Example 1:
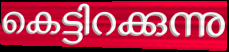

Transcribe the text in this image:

കെട്ടിറക്കുന്നു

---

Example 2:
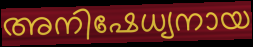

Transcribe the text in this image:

അനിഷേധ്യനായ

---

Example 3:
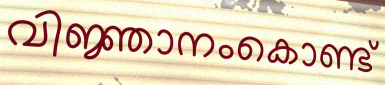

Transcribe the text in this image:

വിജ്ഞാനംകൊണ്ട്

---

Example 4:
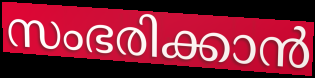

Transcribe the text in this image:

സംഭരിക്കാൻ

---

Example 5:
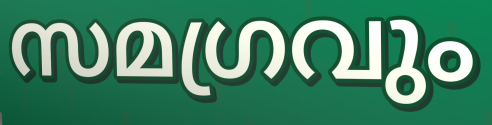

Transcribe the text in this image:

സമഗ്രവും